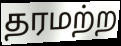
தரமற்ற